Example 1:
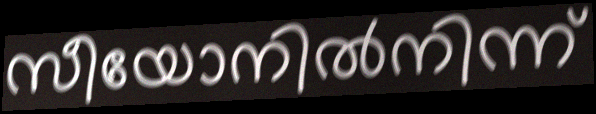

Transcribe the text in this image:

സീയോനിൽനിന്ന്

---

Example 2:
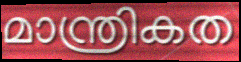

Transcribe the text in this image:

മാന്ത്രികത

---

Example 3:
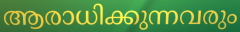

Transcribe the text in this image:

ആരാധിക്കുന്നവരും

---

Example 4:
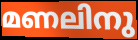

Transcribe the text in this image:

മണലിനു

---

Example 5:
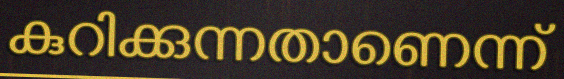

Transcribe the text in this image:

കുറിക്കുന്നതാണെന്ന്